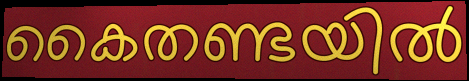
കൈതണ്ടയിൽ